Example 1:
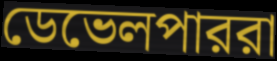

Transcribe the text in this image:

ডেভেলপাররা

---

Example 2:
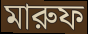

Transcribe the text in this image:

মারুফ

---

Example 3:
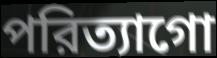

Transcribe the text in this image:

পরিত্যাগো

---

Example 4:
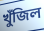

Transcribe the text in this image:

খুঁজিল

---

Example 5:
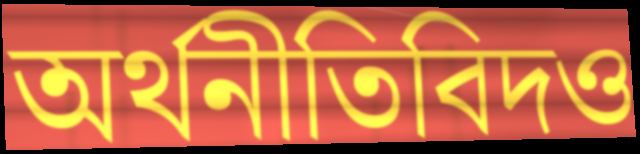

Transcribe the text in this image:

অর্থনীতিবিদও